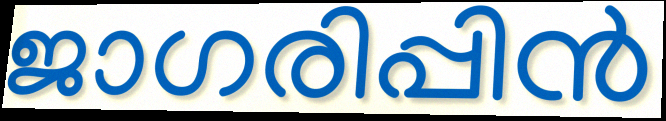
ജാഗരിപ്പിൻ